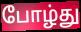
போழ்து